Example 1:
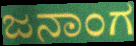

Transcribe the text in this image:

ಜನಾಂಗ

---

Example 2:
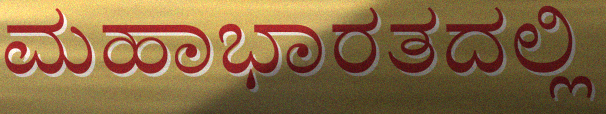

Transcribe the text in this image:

ಮಹಾಭಾರತದಲ್ಲಿ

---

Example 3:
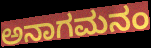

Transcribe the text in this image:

ಅನಾಗಮನಂ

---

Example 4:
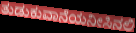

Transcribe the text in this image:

ತುಡುಕುವಾನೆಯನೀಸಿನಲಿ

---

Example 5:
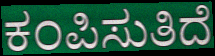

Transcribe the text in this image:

ಕಂಪಿಸುತಿದೆ